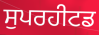
ਸੁਪਰਹੀਟਡ